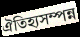
ঐতিহ্যসম্পন্ন